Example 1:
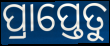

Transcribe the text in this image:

ପ୍ରାପ୍ତେତୁ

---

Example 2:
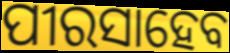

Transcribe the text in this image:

ପୀରସାହେବ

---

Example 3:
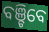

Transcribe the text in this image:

ବଞ୍ଚିବେ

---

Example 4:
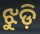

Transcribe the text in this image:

ଝୁଡ଼ି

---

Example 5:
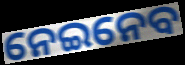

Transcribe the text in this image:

ନେଇନେବ